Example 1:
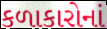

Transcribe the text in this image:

કળાકારોનાં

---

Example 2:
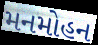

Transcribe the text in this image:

મનમોહન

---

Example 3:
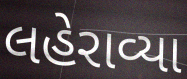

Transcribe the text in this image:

લહેરાવ્યા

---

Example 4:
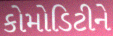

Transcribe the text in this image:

કોમોડિટીને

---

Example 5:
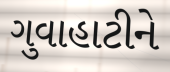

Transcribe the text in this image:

ગુવાહાટીને